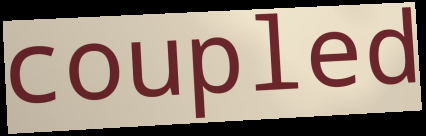
coupled